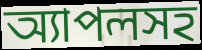
অ্যাপলসহ